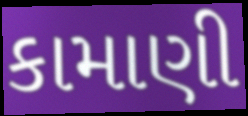
કામાણી